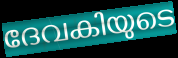
ദേവകിയുടെ